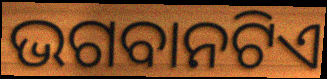
ଭଗବାନଟିଏ